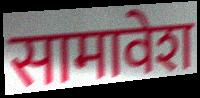
सामावेश